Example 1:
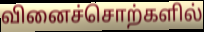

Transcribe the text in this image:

வினைச்சொற்களில்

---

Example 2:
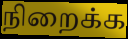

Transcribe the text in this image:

நிறைக்க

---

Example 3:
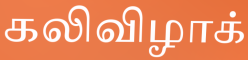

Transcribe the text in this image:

கலிவிழாக்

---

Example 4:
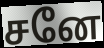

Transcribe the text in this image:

சனே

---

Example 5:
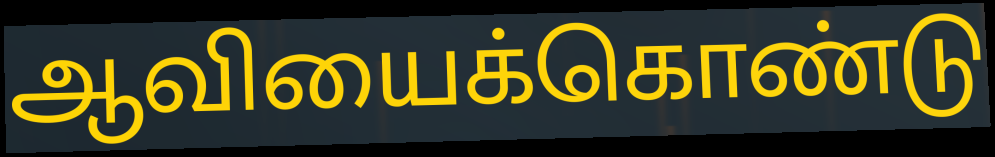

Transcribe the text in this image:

ஆவியைக்கொண்டு